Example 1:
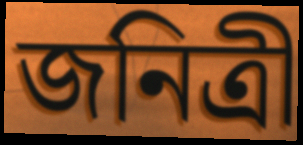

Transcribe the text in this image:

জনিত্রী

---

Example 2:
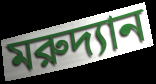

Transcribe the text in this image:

মরুদ্যান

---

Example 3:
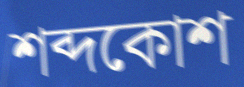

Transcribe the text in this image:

শব্দকোশ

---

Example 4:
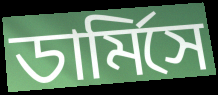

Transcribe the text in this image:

ডার্মিসে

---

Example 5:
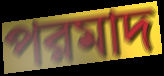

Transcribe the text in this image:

পরমাদ